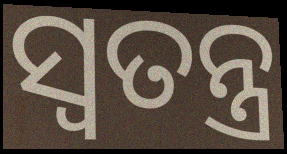
ସ୍ୱତନ୍ତ୍ର